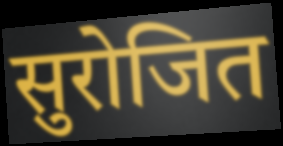
सुरोजित